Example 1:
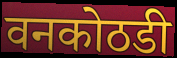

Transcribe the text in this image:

वनकोठडी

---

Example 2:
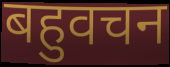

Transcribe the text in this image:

बहुवचन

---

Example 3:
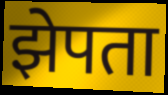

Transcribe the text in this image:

झेपता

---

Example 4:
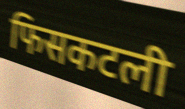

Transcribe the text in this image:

फिसकटली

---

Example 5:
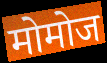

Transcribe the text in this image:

मोमोज